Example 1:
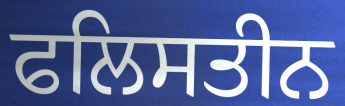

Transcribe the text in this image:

ਫਲਿਸਤੀਨ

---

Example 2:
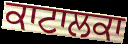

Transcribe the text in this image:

ਕਾਟਾਲਕਾ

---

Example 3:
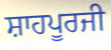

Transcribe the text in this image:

ਸ਼ਾਹਪੂਰਜੀ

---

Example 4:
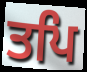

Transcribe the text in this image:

ਤਪਿ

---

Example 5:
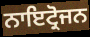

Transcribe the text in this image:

ਨਾਇਟ੍ਰੋਜਨ